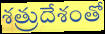
శత్రుదేశంతో